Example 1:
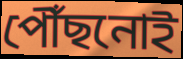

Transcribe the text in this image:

পৌঁছনোই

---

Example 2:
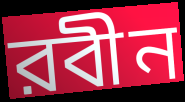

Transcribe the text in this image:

রবীন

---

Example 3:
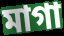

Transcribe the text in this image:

মাগা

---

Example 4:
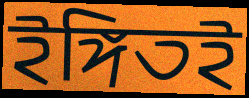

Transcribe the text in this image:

ইঙ্গিতই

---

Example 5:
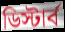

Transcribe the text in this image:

ডিস্টার্ব